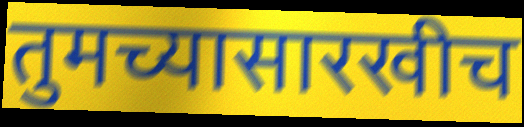
तुमच्यासारखीच